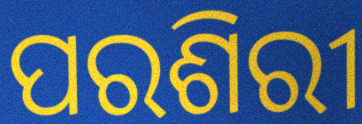
ପରଶିରୀ